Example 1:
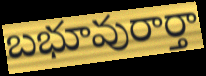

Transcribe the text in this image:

బభూవురార్తా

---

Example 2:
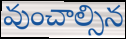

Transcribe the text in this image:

వుంచాల్సిన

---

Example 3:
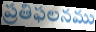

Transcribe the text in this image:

ప్రతిఫలనము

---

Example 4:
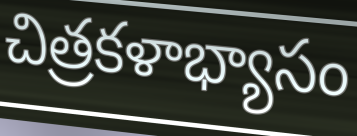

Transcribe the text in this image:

చిత్రకళాభ్యాసం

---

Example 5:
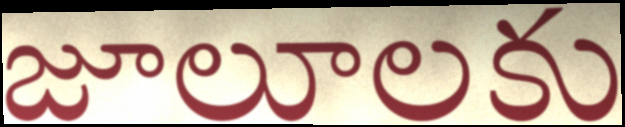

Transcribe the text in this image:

జూలూలకు